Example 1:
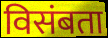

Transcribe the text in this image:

विसंबता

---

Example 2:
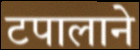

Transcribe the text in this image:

टपालाने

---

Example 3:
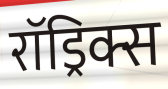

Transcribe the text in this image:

रॉड्रिक्स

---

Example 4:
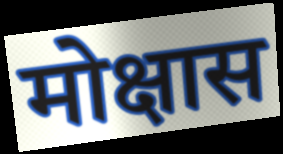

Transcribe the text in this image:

मोक्षास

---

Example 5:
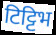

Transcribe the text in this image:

टिट्टिभ